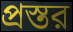
প্রস্তর